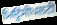
ਮਿਊਂਸੀਪਲਟੀ